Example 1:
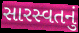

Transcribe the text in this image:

સારસ્વતનું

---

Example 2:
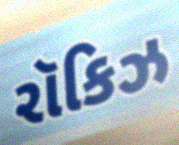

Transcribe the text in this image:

રૉકિઝ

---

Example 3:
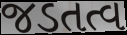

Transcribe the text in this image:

જડતત્વ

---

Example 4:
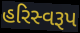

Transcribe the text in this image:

હરિસ્વરૂપ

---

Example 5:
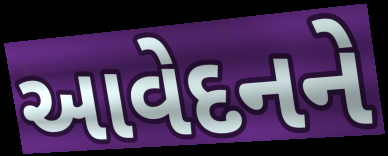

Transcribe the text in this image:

આવેદનને